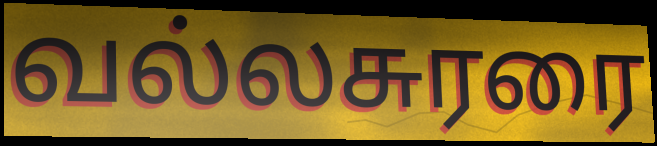
வல்லசுரரை